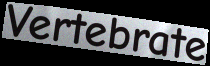
Vertebrate